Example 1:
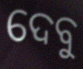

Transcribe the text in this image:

ଦେବୁ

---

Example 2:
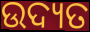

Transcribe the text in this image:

ଉଦ୍ୟତ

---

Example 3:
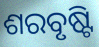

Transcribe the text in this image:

ଶରବୃଷ୍ଟି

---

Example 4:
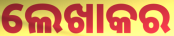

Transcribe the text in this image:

ଲେଖାକର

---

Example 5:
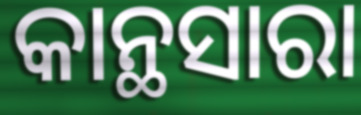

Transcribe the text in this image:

କାନ୍ଥସାରା